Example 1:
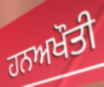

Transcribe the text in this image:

ਹਨਅਖੌਤੀ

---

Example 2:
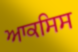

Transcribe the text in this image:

ਆਕਸਿਸ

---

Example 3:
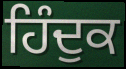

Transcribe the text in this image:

ਹਿੰਦੁਕ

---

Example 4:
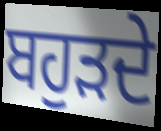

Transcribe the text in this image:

ਬਹੁੜਦੇ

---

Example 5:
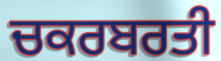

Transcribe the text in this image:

ਚਕਰਬਰਤੀ